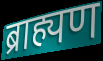
ब्राह्यण